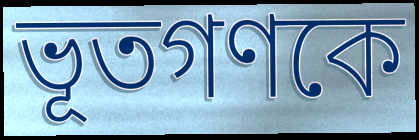
ভূতগণকে